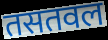
तसतवल